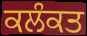
ਕਲੰਕਤ